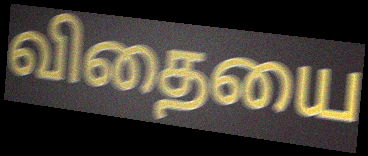
விதையை